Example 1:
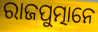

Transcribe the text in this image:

ରାଜପୁତ୍ମାନେ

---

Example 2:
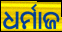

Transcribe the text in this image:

ଧର୍ମାଜ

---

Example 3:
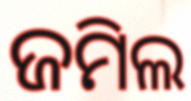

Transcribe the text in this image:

ଜମିଲ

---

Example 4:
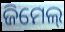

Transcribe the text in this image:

ଜିମେଲ୍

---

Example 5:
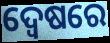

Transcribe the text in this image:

ଦ୍ୱେଷରେ